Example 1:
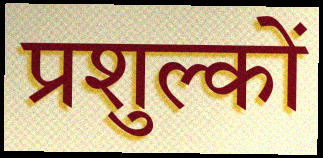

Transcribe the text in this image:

प्रशुल्कों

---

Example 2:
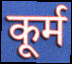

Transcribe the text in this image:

कूर्म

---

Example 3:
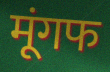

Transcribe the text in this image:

मूंगफ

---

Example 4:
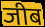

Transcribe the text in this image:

जीब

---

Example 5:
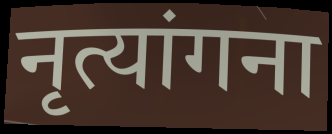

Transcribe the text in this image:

नृत्यांगना